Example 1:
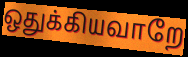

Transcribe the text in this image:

ஒதுக்கியவாறே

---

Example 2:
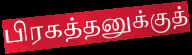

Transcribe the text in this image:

பிரகத்தனுக்குத்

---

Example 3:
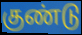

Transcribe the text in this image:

குண்டு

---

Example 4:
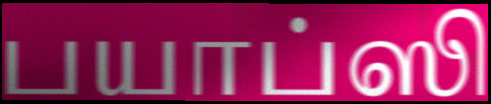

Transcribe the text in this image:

பயாப்ஸி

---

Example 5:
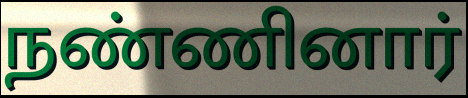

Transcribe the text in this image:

நண்ணினார்